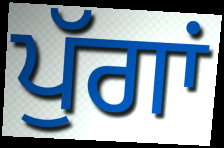
ਪੁੱਗਾਂ